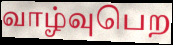
வாழ்வுபெற